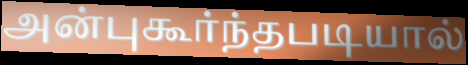
அன்புகூர்ந்தபடியால்